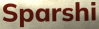
Sparshi